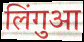
लिंगुआ